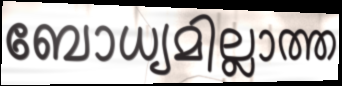
ബോധ്യമില്ലാത്ത